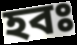
হবঃ